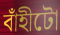
বাঁহীটো